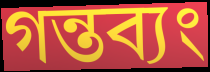
গন্তব্যং